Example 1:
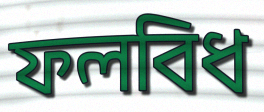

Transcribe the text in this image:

ফলবিধ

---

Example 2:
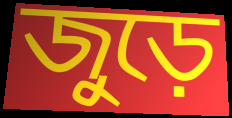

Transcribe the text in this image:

জুড়ে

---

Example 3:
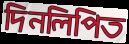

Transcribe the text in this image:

দিনলিপিত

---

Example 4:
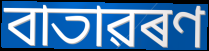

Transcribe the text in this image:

বাতাৱৰণ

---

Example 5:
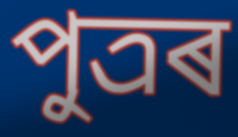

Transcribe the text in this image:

পুত্ৰৰ